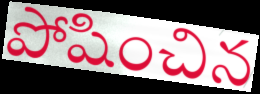
పోషించిన